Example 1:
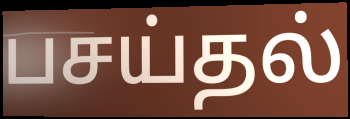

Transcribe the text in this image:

பசய்தல்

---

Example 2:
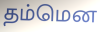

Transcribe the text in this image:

தம்மென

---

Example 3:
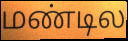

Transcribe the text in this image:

மண்டில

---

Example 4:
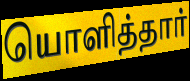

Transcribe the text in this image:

யொளித்தார்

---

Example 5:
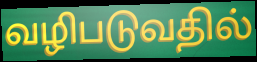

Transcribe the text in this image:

வழிபடுவதில்